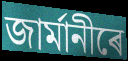
জাৰ্মানীৰে